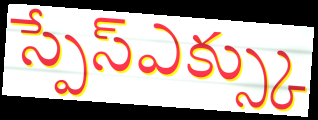
స్పేస్ఎక్స్కు